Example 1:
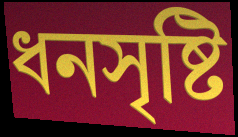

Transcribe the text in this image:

ধনসৃষ্টি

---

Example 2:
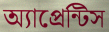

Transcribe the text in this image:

অ্যাপ্রেন্টিস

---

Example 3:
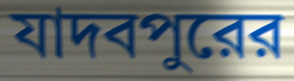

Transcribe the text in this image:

যাদবপুরের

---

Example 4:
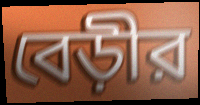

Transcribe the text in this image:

বেড়ীর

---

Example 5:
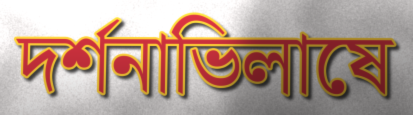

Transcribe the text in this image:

দর্শনাভিলাষে